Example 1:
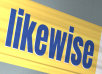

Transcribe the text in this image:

likewise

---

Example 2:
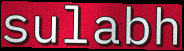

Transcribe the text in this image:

sulabh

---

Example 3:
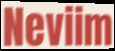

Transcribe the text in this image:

Neviim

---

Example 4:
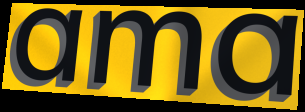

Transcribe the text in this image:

ama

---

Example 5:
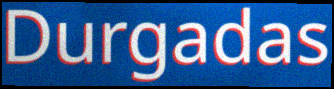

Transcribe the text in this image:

Durgadas